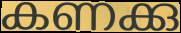
കണക്കു